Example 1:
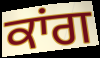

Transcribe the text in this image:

ਕਾਂਗ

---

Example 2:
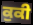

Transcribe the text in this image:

ਕੁਕੀ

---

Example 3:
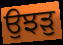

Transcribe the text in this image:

ਉਝੜੁ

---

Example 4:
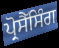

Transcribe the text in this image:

ਪ੍ਰੋਸੈੱਸਿੰਗ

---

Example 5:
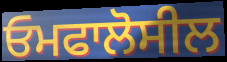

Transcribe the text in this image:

ਓਮਫਾਲੋਸੀਲ